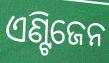
ଏଣ୍ଟିଜେନ